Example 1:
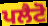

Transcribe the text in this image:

ਪਲੈਟੋ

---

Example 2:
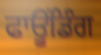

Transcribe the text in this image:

ਫਾਊਂਡਿੰਗ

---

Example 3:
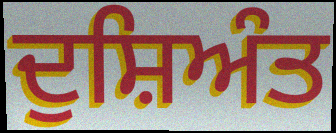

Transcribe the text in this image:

ਦੁਸ਼ਿਅੰਤ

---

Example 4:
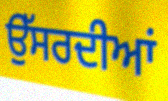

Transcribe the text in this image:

ਉੱਸਰਦੀਆਂ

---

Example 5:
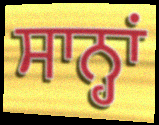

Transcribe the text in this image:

ਸਾਨ੍ਹਾਂ